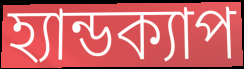
হ্যান্ডক্যাপ